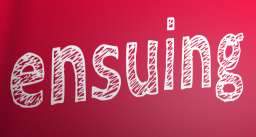
ensuing